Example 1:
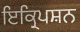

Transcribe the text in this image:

ਇਕ੍ਰਿਪਸ਼ਨ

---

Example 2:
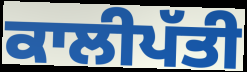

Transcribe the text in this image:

ਕਾਲੀਪੱਤੀ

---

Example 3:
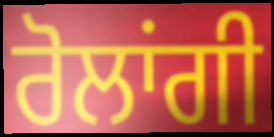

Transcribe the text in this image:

ਰੋਲਾਂਗੀ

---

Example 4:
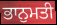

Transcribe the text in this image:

ਭਾਨੁਮਤੀ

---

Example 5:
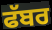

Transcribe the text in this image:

ਫੱਬਰ